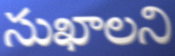
సుఖాలని